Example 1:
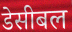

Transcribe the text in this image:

डेसीबल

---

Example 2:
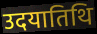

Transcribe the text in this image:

उदयातिथि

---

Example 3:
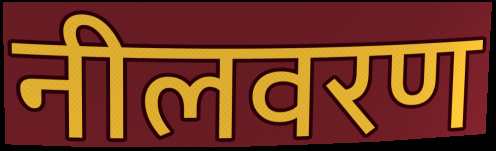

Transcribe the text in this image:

नीलवरण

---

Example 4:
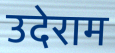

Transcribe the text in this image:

उदेराम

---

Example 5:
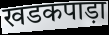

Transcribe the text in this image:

खडकपाड़ा